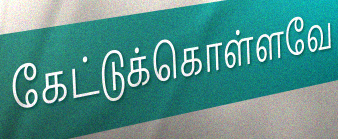
கேட்டுக்கொள்ளவே